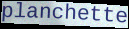
planchette